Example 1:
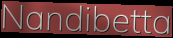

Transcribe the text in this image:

Nandibetta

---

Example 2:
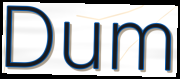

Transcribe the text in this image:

Dum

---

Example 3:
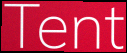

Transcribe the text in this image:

Tent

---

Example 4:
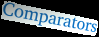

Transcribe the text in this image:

Comparators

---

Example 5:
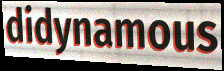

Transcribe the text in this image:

didynamous